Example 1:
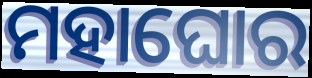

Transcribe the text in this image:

ମହାଘୋର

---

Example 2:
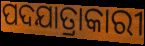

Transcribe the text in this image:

ପଦଯାତ୍ରାକାରୀ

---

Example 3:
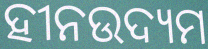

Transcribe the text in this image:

ହୀନଉଦ୍ୟମ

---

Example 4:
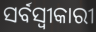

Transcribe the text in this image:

ସର୍ବସ୍ଵୀକାରୀ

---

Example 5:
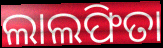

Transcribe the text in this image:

ଲାଲଫିତା